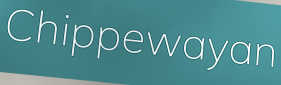
Chippewayan